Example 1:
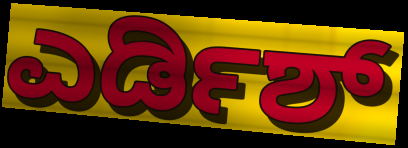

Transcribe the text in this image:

ಎರ್ಡಿಶ್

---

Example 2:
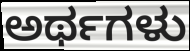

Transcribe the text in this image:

ಅರ್ಥಗಳು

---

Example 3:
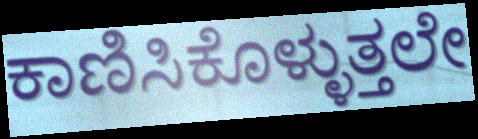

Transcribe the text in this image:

ಕಾಣಿಸಿಕೊಳ್ಳುತ್ತಲೇ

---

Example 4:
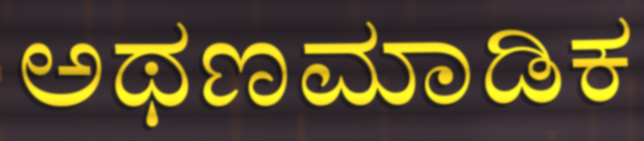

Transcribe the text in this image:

ಅಥಣಮಾಡಿಕ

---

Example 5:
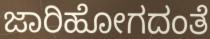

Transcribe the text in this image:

ಜಾರಿಹೋಗದಂತೆ